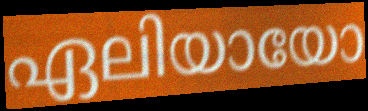
ഏലിയായോ